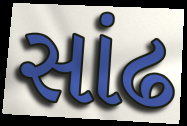
સાંઢ